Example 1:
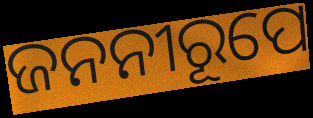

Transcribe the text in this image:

ଜନନୀରୂପେ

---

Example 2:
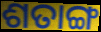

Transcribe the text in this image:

ଶତାଙ୍ଗ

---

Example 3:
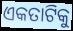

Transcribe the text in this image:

ଏକତାଟିକୁ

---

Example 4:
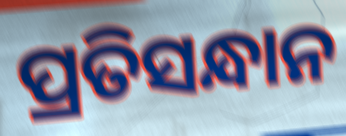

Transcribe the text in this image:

ପ୍ରତିସନ୍ଧାନ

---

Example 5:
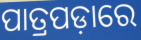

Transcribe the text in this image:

ପାତ୍ରପଡ଼ାରେ